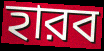
হারব